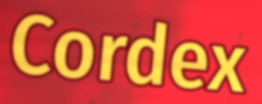
Cordex